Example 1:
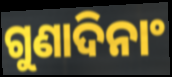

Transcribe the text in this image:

ଗୁଣାଦିନାଂ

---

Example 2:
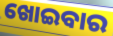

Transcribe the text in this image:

ଖୋଇବାର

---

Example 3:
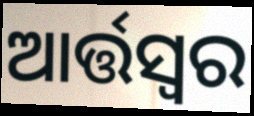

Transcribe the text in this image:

ଆର୍ତ୍ତସ୍ୱର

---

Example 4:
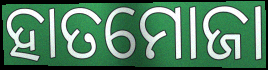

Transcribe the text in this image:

ହାତମୋଜା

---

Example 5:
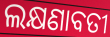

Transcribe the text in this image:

ଲକ୍ଷଣାବତୀ